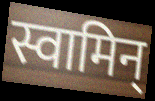
स्वामिन्